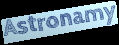
Astronamy